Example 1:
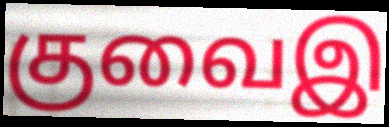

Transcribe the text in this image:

குவைஇ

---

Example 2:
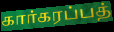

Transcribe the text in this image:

கார்கரப்பத்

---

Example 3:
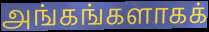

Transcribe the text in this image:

அங்கங்களாகக்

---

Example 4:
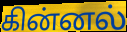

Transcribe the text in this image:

கின்னல்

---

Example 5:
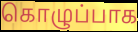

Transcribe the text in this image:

கொழுப்பாக